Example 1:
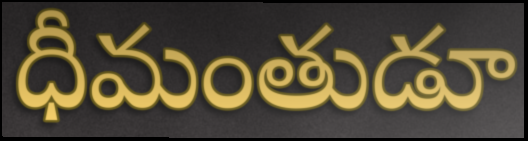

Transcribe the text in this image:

ధీమంతుడూ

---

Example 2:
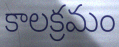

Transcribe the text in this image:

కాలక్రమం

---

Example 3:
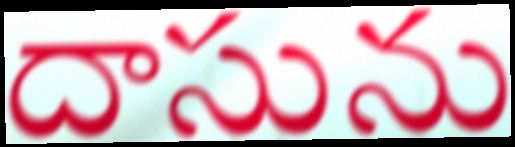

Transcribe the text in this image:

దాసును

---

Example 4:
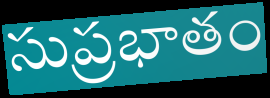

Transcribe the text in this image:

సుప్రభాతం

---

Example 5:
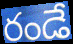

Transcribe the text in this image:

రండే